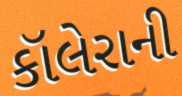
કૉલેરાની